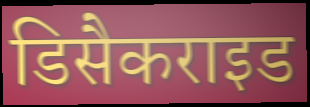
डिसैकराइड